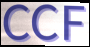
CCF